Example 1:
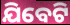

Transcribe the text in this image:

ଯିବେଟି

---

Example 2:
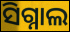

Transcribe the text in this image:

ସିଗ୍ନାଲ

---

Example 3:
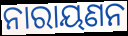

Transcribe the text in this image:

ନାରାୟଣନ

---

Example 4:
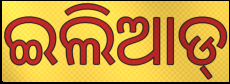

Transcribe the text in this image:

ଇଲିଆଡ୍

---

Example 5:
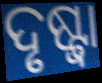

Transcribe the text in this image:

ଦୃଷ୍ଟ୍ବା